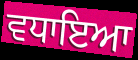
ਵਧਾਇਆ